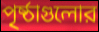
পৃষ্ঠাগুলোর